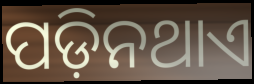
ପଡ଼ିନଥାଏ